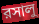
রসালু